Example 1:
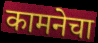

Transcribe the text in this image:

कामनेचा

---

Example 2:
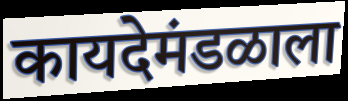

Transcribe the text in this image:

कायदेमंडळाला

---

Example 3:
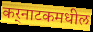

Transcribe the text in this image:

कर्नाटकमधील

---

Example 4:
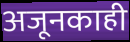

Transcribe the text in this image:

अजूनकाही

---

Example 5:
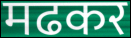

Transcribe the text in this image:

मढकर